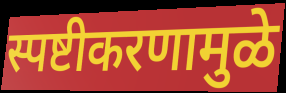
स्पष्टीकरणामुळे